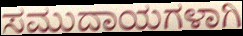
ಸಮುದಾಯಗಳಾಗಿ